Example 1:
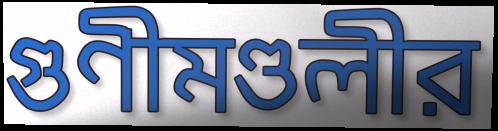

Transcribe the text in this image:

গুণীমণ্ডলীর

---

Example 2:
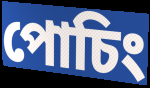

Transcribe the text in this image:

পোচিং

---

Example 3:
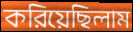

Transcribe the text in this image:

করিয়েছিলাম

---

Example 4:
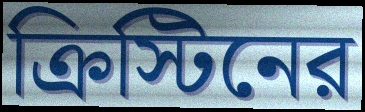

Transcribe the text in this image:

ক্রিস্টিনের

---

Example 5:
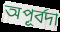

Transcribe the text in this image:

অপূর্বদা